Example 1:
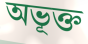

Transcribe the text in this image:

অভূক্ত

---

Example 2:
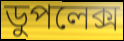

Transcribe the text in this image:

ডুপলেক্স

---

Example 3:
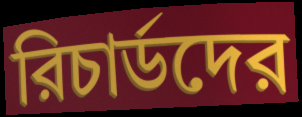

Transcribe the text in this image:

রিচার্ডদের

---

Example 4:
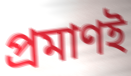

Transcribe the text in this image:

প্রমাণই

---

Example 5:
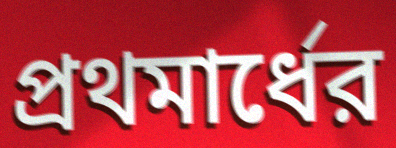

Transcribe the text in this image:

প্রথমার্ধের